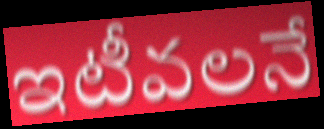
ఇటీవలనే